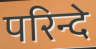
परिन्दे